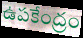
ఉపకేంద్రం